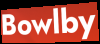
Bowlby